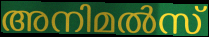
അനിമൽസ്